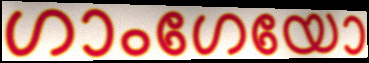
ഗാംഗേയോ